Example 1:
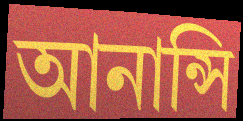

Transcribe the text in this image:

আনান্সি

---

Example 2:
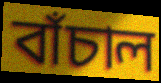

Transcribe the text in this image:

বাঁচাল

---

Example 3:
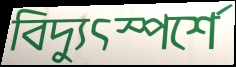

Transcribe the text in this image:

বিদ্যুৎস্পর্শে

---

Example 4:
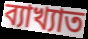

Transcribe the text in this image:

ব্যাখ্যাত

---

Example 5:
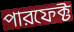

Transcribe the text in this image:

পারফেক্ট